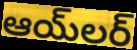
ఆయ్‌లర్